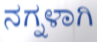
ನಗ್ನಳಾಗಿ